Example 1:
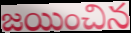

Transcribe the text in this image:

జయించిన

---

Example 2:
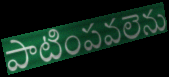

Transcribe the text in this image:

పాటింపవలెను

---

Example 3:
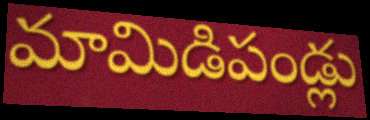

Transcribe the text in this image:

మామిడిపండ్లు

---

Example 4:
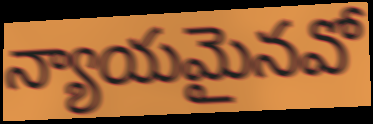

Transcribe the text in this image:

న్యాయమైనవో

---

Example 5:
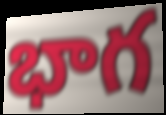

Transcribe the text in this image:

భాగ